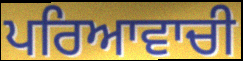
ਪਰਿਆਵਾਚੀ